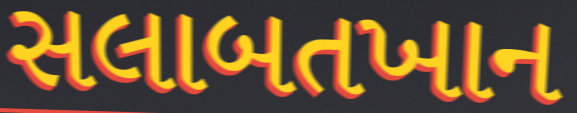
સલાબતખાન